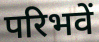
परिभवें